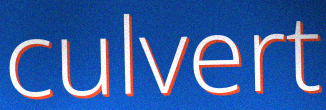
culvert